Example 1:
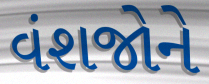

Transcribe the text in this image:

વંશજોને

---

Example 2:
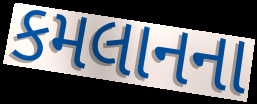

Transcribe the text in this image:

કમલાનના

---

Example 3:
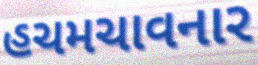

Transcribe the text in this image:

હચમચાવનાર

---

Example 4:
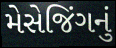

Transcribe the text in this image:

મેસેજિંગનું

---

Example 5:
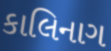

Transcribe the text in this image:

કાલિનાગ